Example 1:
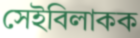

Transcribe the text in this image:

সেইবিলাকক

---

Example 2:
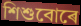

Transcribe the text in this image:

শিশুবোৰে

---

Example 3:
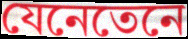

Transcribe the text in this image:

যেনেতেনে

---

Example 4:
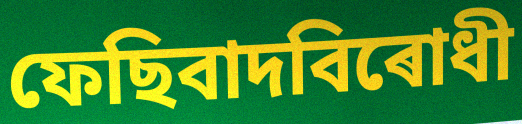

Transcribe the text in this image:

ফেছিবাদবিৰোধী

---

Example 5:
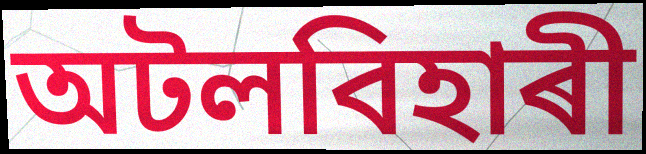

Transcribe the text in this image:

অটলবিহাৰী